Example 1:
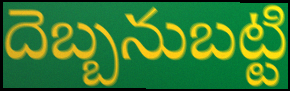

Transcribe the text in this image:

దెబ్బనుబట్టి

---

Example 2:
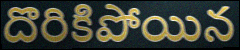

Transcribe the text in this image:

దొరికిపోయిన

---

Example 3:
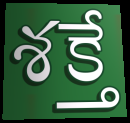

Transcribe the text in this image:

శక్తే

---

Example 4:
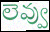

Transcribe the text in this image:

లెవ్వు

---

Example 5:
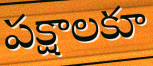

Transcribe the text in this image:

పక్షాలకూ